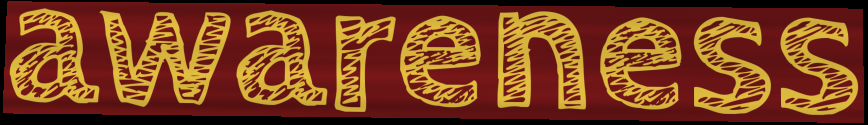
awareness